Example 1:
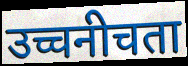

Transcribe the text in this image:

उच्चनीचता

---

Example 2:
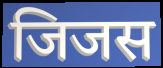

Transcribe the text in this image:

जिजस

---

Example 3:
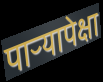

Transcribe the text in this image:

पाऱ्यापेक्षा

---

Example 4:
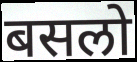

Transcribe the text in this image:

बसलो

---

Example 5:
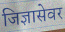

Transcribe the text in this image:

जिज्ञासेवर